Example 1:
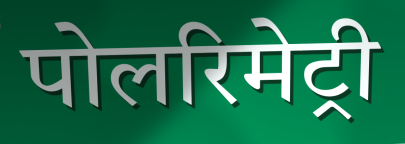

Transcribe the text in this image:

पोलरिमेट्री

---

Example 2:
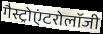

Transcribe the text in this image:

गैस्ट्रोएंटरोलॉजी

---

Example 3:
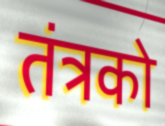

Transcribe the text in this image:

तंत्रको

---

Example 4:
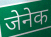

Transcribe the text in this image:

जेनेक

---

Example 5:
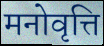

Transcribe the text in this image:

मनोवृत्ति